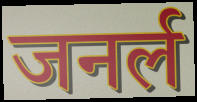
जनर्ल